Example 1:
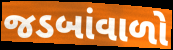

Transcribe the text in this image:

જડબાંવાળો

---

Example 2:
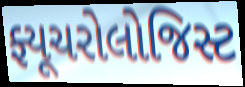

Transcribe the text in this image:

ફ્યૂચરોલોજિસ્ટ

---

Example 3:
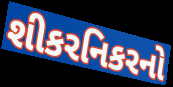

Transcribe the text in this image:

શીકરનિકરનો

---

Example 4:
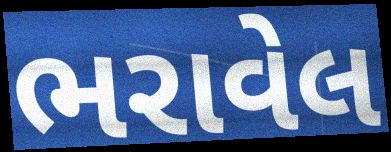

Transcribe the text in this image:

ભરાવેલ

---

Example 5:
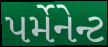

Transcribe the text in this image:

પર્મેનેન્ટ